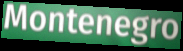
Montenegro